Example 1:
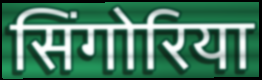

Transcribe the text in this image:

सिंगोरिया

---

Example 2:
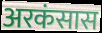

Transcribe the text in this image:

अरकंसास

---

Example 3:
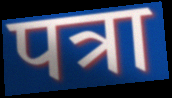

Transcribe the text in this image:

पत्रा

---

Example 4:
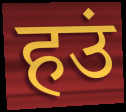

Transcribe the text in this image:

हउं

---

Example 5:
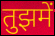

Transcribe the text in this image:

तुझमें